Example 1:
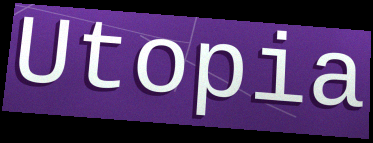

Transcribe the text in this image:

Utopia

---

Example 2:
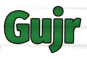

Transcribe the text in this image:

Gujr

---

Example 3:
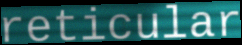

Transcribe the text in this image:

reticular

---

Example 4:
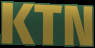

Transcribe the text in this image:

KTN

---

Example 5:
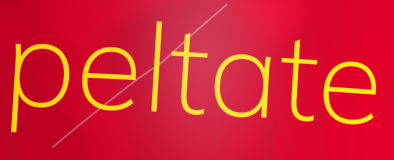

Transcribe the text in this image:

peltate